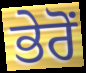
ਭੇਰੋਂ